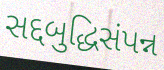
સદ્દબુદ્ધિસંપન્ન